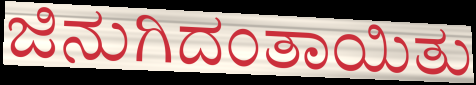
ಜಿನುಗಿದಂತಾಯಿತು